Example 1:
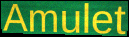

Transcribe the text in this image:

Amulet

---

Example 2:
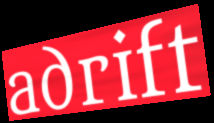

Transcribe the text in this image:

adrift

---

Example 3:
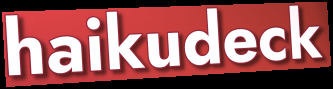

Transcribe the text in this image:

haikudeck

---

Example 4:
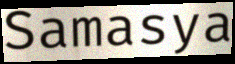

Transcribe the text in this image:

Samasya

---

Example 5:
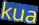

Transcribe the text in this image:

kua